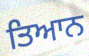
ਤਿਆਨ